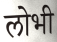
लोभी